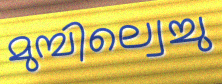
മുമ്പില്വെച്ചു